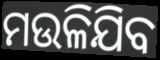
ମଉଳିଯିବ